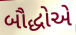
બૌદ્ધોએ